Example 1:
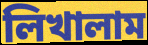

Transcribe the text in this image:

লিখালাম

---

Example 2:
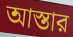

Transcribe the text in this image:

আস্তার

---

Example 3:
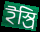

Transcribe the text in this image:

ইস্ত্রি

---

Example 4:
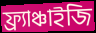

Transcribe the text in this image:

ফ্র্যাঞ্চাইজি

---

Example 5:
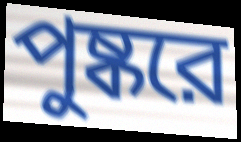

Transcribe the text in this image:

পুষ্করে